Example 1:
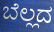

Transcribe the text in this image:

ಬೆಲ್ಲದ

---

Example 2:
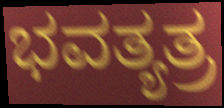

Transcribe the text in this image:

ಭವತ್ಯತ್ರ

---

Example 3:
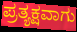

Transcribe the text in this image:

ಪ್ರತ್ಯಕ್ಷವಾಗು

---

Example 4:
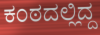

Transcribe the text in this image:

ಕಂಠದಲ್ಲಿದ್ದ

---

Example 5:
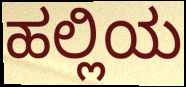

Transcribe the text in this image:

ಹಲ್ಲಿಯ